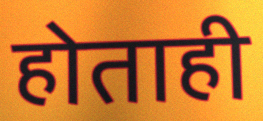
होताही